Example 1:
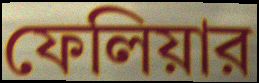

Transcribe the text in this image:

ফেলিয়ার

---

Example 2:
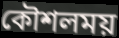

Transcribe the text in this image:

কৌশলময়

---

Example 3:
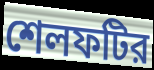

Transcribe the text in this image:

শেলফটির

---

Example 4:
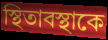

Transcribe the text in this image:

স্থিতাবস্থাকে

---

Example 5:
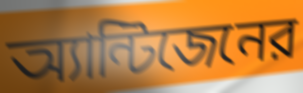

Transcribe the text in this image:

অ্যান্টিজেনের